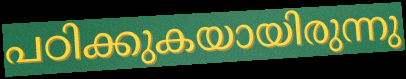
പഠിക്കുകയായിരുന്നു